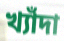
খ্যাঁদা